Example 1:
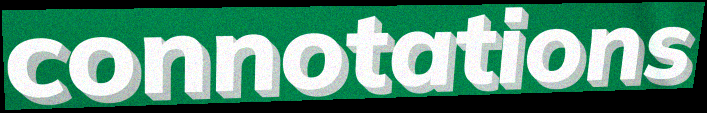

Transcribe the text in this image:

connotations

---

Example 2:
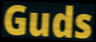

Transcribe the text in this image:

Guds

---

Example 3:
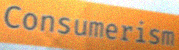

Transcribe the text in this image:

Consumerism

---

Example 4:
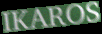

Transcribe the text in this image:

IKAROS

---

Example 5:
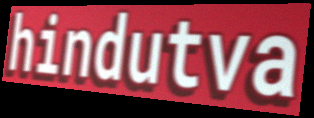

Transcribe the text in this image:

hindutva